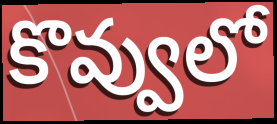
కొవ్వులో